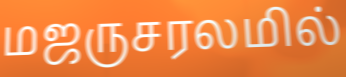
மஜருசரலமில்